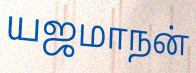
யஜமாநன்